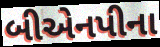
બીએનપીના